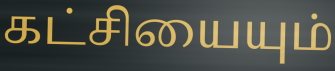
கட்சியையும்